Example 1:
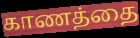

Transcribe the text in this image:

காணத்தை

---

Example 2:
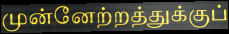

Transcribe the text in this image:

முன்னேற்றத்துக்குப்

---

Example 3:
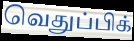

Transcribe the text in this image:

வெதுப்பிக்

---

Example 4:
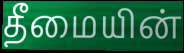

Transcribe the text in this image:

தீமையின்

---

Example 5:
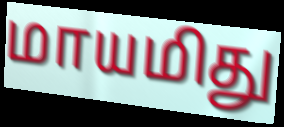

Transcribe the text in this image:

மாயமிது